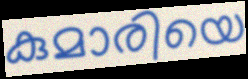
കുമാരിയെ